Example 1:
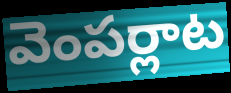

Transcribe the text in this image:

వెంపర్లాట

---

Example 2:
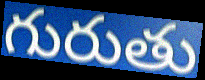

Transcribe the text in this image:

గురుతు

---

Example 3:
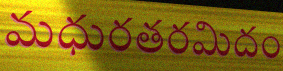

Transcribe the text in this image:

మధురతరమిదం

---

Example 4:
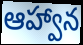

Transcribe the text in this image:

ఆహ్వాన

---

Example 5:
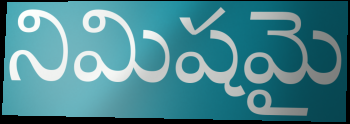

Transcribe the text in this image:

నిమిషమై